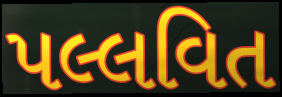
પલ્લવિત